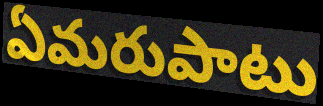
ఏమరుపాటు